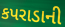
કપરાડાની